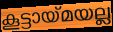
കൂട്ടായ്മയല്ല